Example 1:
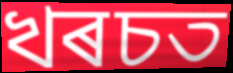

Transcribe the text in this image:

খৰচত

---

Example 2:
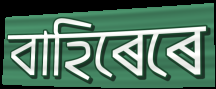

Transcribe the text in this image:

বাহিৰেৰে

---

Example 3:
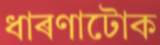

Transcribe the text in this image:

ধাৰণাটোক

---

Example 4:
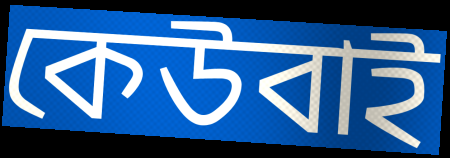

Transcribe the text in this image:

কেউবাই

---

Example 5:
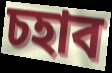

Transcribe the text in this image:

চহাব